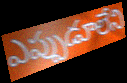
ఎప్పుడూలేని